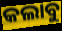
କଲାବୁ